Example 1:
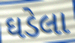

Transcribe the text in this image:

ઘડેલા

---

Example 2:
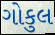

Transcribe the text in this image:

ગોકુલ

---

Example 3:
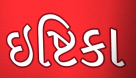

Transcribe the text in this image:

ઇષ્ટિકા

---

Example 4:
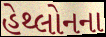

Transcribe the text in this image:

હેથ્લોનના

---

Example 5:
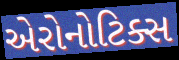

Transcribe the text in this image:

એરોનોટિક્સ